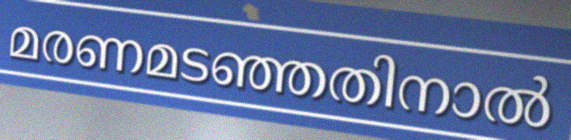
മരണമടഞ്ഞതിനാൽ